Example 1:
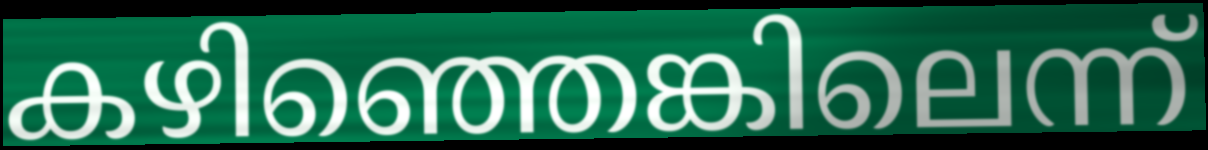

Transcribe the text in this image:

കഴിഞ്ഞെങ്കിലെന്ന്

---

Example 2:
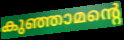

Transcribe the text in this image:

കുഞ്ഞാമന്റെ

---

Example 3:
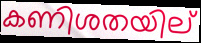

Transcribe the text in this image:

കണിശതയില്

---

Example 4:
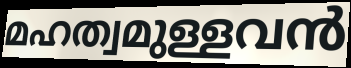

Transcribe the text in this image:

മഹത്വമുള്ളവൻ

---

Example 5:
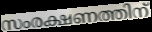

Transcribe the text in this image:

സംരക്ഷണത്തിന്